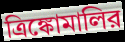
ত্রিঙ্কোমালির